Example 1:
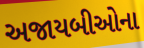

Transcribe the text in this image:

અજાયબીઓના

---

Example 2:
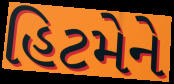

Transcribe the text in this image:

હિટમેને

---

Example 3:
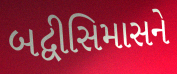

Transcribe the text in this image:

બદ્વીસિમાસને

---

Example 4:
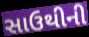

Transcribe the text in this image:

સાઉથીની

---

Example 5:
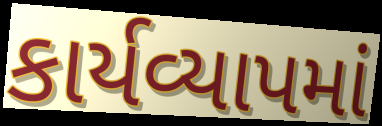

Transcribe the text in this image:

કાર્યવ્યાપમાં